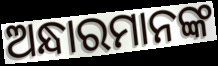
ଅନ୍ଧାରମାନଙ୍କ